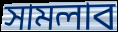
সামলাব